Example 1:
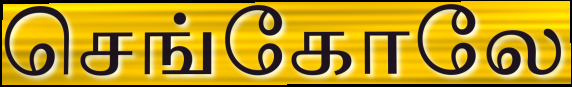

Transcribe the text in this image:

செங்கோலே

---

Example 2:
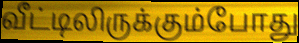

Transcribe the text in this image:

வீட்டிலிருக்கும்போது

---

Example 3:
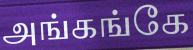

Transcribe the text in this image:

அங்கங்கே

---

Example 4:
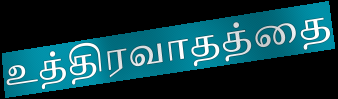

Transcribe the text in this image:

உத்திரவாதத்தை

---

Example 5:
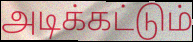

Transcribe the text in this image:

அடிக்கட்டும்